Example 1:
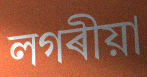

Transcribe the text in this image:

লগৰীয়া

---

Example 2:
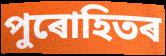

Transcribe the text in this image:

পুৰোহিতৰ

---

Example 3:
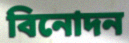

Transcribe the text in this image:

বিনোদন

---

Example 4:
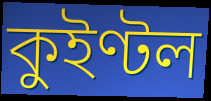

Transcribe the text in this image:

কুইণ্টল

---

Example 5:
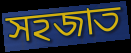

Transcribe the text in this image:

সহজাত